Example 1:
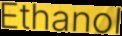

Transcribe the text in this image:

Ethanol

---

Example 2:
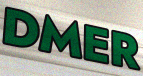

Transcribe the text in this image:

DMER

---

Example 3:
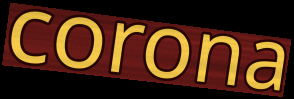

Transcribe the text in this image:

corona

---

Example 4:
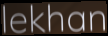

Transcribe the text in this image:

lekhan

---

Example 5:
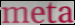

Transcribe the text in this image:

meta